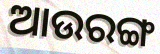
ଆଉରଙ୍ଗ